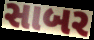
સાબર